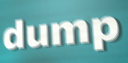
dump